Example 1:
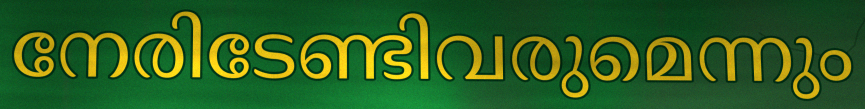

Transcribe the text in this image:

നേരിടേണ്ടിവരുമെന്നും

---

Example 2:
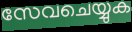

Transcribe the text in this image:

സേവചെയ്യുക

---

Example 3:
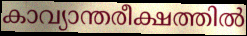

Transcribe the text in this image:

കാവ്യാന്തരീക്ഷത്തിൽ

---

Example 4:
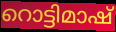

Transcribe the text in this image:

റൊട്ടിമാഷ്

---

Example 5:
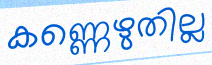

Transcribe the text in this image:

കണ്ണെഴുതില്ല